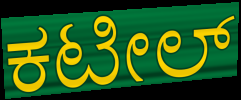
ಕಟೀಲ್